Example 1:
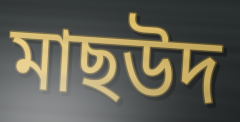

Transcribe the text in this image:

মাছউদ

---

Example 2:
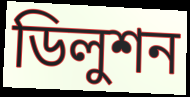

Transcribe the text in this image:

ডিলুশন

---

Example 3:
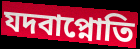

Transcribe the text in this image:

যদবাপ্নোতি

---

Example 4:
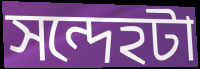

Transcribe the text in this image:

সন্দেহটা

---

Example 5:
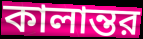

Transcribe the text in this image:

কালান্তর